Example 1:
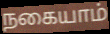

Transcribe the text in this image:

நகையாம்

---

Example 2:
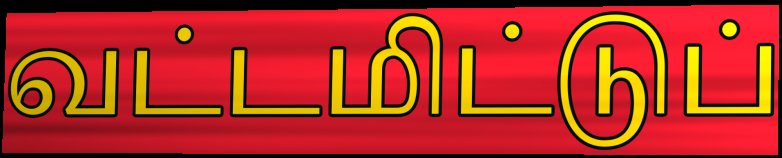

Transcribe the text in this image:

வட்டமிட்டுப்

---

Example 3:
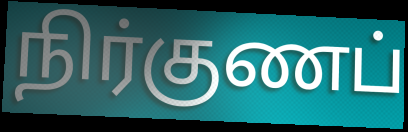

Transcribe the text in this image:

நிர்குணப்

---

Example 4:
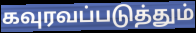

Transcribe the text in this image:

கவுரவப்படுத்தும்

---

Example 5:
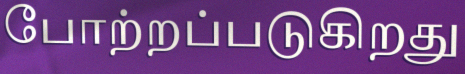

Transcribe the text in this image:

போற்றப்படுகிறது